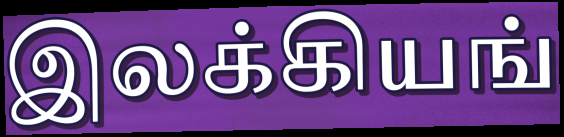
இலக்கியங்